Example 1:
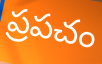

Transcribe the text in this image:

ప్రపచం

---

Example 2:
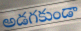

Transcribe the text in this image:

అడగకుండా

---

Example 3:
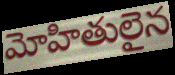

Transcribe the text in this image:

మోహితులైన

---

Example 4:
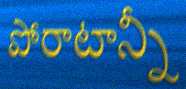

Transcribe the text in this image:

పోరాటాన్నీ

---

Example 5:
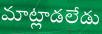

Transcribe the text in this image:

మాట్లాడలేడు